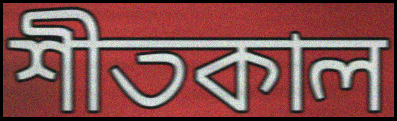
শীতকাল